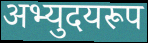
अभ्युदयरूप